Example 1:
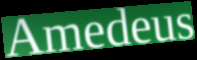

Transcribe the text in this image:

Amedeus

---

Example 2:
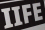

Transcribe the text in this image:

IIFE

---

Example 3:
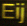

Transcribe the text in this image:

Eij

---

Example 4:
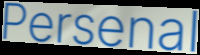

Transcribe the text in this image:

Persenal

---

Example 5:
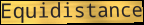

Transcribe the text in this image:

Equidistance